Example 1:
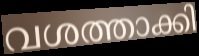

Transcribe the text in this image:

വശത്താക്കി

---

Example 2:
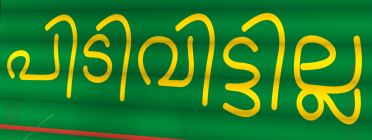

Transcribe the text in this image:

പിടിവിട്ടില്ല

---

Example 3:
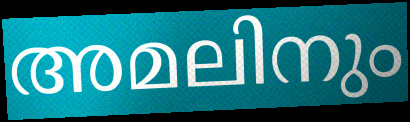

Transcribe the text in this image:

അമലിനും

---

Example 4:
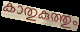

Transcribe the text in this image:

കാതുകുത്തും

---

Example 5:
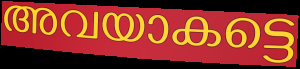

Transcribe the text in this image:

അവയാകട്ടെ